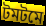
টমটমে